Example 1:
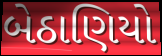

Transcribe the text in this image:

બેઠાણિયો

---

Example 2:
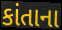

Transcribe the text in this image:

કાંતાના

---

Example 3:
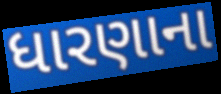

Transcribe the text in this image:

ધારણાના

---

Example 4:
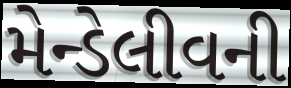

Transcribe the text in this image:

મેન્ડેલીવની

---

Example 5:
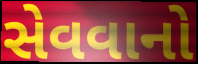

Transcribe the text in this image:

સેવવાનો